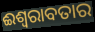
ଈଶ୍ୱରାବତାର